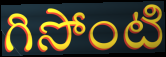
గిసోంటి